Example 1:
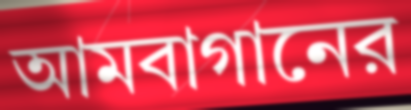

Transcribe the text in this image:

আমবাগানের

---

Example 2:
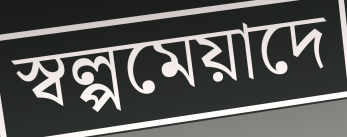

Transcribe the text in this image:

স্বল্পমেয়াদে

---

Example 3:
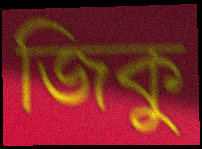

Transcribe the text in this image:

জিকু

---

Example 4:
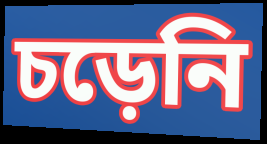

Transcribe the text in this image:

চড়েনি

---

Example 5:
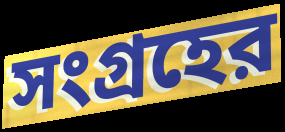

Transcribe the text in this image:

সংগ্রহের